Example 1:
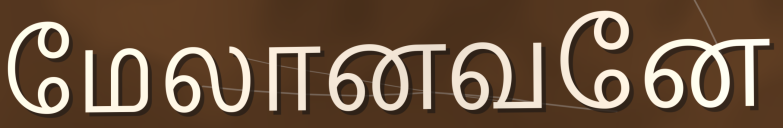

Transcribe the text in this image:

மேலானவனே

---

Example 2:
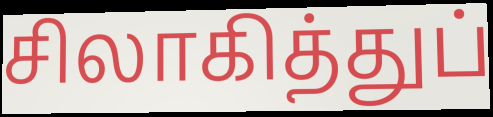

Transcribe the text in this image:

சிலாகித்துப்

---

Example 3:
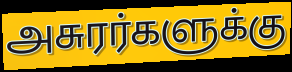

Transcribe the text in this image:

அசுரர்களுக்கு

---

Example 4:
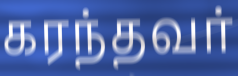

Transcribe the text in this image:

கரந்தவர்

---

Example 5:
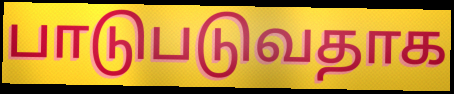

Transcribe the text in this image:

பாடுபடுவதாக